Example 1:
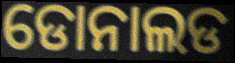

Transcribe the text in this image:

ଡୋନାଲଡ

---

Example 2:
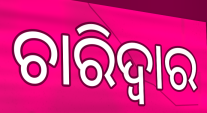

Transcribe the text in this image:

ଚାରିଦ୍ୱାର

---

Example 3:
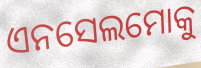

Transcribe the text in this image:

ଏନସେଲମୋକୁ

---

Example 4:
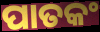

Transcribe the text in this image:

ପାତକଂ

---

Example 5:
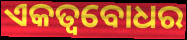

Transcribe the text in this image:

ଏକତ୍ୱବୋଧର